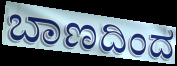
ಬಾಣದಿಂದ